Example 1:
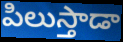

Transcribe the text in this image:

పిలుస్తాడా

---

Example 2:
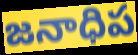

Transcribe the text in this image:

జనాధిప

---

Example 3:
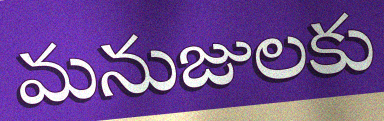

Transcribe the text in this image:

మనుజులకు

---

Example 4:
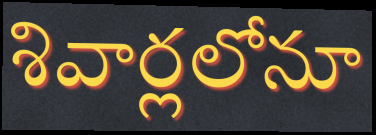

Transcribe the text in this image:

శివార్లలోనూ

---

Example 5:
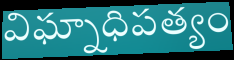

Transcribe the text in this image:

విఘ్నాధిపత్యం